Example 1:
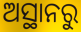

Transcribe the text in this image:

ଅସ୍ଥାନରୁ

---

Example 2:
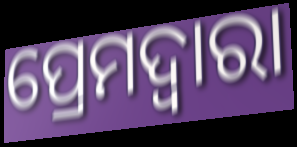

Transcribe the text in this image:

ପ୍ରେମଦ୍ୱାରା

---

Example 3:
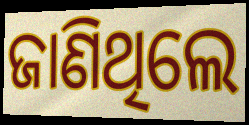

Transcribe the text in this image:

ଜାଣିଥିଲେ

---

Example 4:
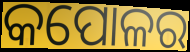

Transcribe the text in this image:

କପୋଳର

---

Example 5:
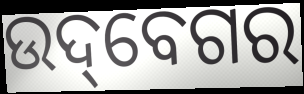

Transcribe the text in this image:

ଉଦ୍‌ବେଗର